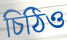
চিঠিও